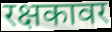
रक्षकावर